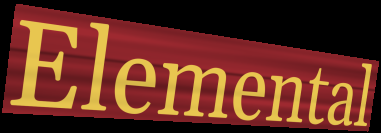
Elemental